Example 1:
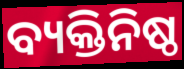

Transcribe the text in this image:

ବ୍ୟକ୍ତିନିଷ୍ଠ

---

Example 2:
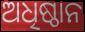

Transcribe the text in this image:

ଅଧିଷ୍ଠାନ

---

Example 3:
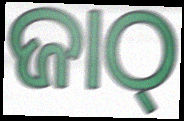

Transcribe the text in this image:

ଜାଠ୍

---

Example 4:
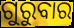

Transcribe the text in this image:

ଗୁରୁବାର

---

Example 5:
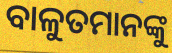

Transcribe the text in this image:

ବାଳୁତମାନଙ୍କୁ